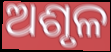
ଅଶୃଳ